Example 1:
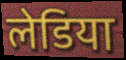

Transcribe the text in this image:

लेडिया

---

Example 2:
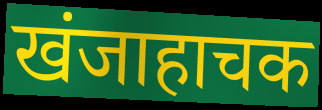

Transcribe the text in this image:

खंजाहाचक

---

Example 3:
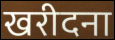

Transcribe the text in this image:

खरीदना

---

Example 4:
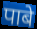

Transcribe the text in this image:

पाबे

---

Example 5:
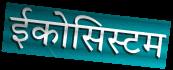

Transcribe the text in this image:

ईकोसिस्‍टम